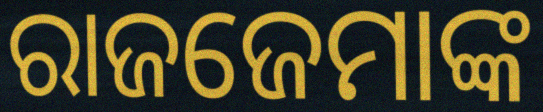
ରାଜଜେମାଙ୍କ